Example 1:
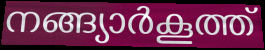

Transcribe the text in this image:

നങ്ങ്യാർകൂത്ത്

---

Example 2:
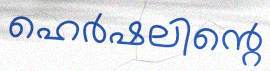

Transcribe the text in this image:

ഹെർഷലിന്റെ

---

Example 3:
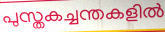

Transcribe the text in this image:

പുസ്തകച്ചന്തകളിൽ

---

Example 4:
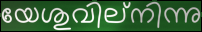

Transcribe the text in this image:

യേശുവില്നിന്നു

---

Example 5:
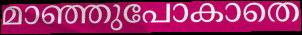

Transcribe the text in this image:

മാഞ്ഞുപോകാതെ